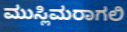
ಮುಸ್ಲಿಮರಾಗಲಿ